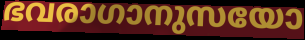
ഭവരാഗാനുസയോ